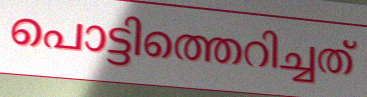
പൊട്ടിത്തെറിച്ചത്